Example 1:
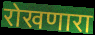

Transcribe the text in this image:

रोखणारा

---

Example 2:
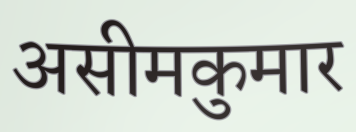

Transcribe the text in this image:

असीमकुमार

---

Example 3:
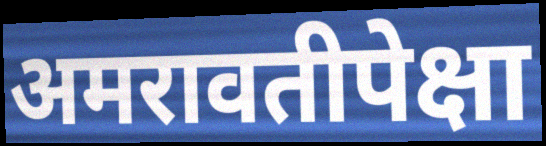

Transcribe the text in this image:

अमरावतीपेक्षा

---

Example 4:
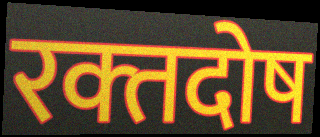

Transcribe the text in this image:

रक्‍तदोष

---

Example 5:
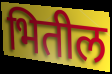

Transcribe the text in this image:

भितील